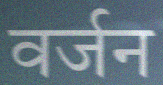
वर्जन